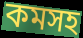
কমসহ